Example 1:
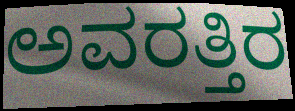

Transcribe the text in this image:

ಅವರತ್ತಿರ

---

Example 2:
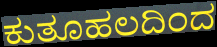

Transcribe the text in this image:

ಕುತೂಹಲದಿಂದ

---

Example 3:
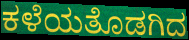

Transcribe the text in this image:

ಕಳೆಯತೊಡಗಿದ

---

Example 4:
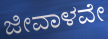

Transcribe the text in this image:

ಜೀವಾಳವೇ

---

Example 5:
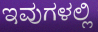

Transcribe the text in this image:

ಇವುಗಳಲ್ಲಿ